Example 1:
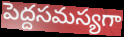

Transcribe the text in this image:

పెద్దసమస్యగా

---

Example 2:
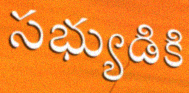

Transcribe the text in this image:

సభ్యుడికి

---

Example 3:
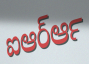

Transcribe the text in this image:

ఐఆర్ఆర్‍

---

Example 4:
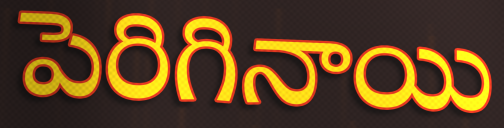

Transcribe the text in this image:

పెరిగినాయి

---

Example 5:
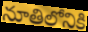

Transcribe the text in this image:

నూతిలోనికి